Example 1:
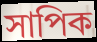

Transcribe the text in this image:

সাপিক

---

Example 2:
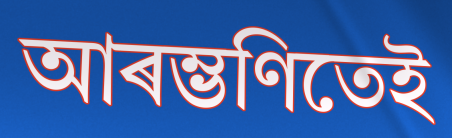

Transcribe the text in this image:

আৰম্ভণিতেই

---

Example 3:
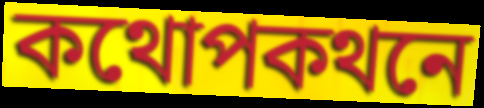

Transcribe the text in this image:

কথোপকথনে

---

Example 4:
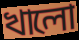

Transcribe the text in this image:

খালো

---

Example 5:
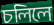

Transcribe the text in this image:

চলিলে